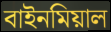
বাইনমিয়াল